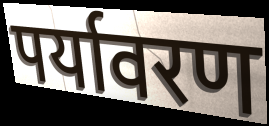
पर्यावरण